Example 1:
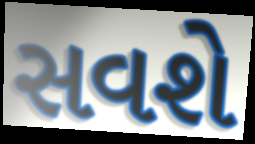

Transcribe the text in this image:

સવશે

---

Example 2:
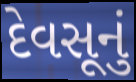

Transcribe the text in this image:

દેવસૂનું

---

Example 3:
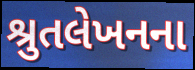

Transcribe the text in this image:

શ્રુતલેખનના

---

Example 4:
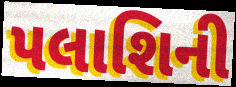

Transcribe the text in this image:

પલાશિની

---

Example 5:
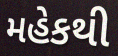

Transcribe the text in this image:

મહેકથી